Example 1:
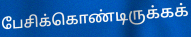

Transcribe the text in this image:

பேசிக்கொண்டிருக்கக்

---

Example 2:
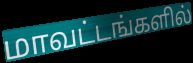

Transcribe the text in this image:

மாவட்டங்களில்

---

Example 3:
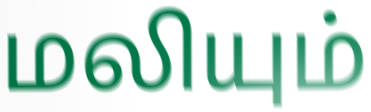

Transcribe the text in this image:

மலியும்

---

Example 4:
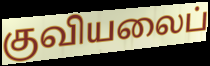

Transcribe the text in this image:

குவியலைப்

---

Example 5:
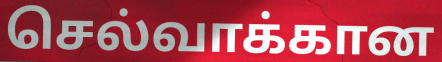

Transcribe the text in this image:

செல்வாக்கான